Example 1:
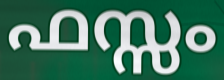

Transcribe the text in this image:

ഫസ്സം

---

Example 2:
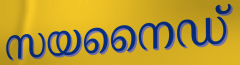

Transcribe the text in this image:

സയനൈഡ്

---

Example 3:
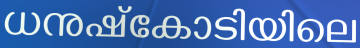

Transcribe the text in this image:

ധനുഷ്‌കോടിയിലെ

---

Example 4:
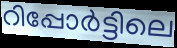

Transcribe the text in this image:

റിപ്പോർട്ടിലെ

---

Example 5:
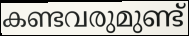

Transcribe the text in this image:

കണ്ടവരുമുണ്ട്